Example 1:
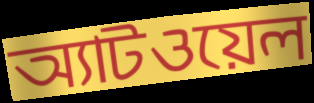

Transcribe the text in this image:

অ্যাটওয়েল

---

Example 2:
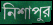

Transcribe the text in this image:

নিশাপুর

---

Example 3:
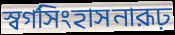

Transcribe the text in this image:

স্বর্গসিংহাসনারূঢ়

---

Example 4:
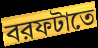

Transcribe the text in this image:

বরফটাতে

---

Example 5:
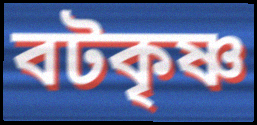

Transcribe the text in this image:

বটকৃষ্ণ